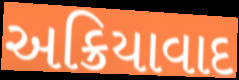
અક્રિયાવાદ